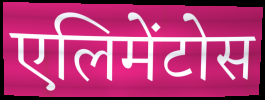
एलिमेंटोस